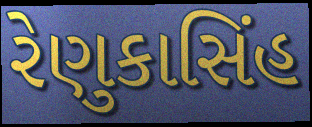
રેણુકાસિંહ